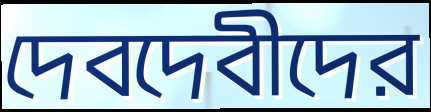
দেবদেবীদের